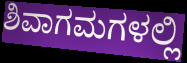
ಶಿವಾಗಮಗಳಲ್ಲಿ